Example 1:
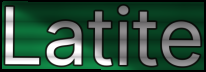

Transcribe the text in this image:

Latite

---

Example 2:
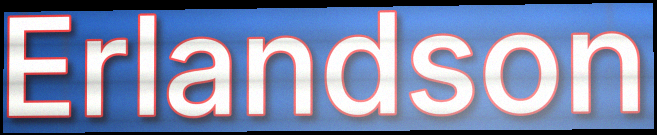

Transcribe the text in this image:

Erlandson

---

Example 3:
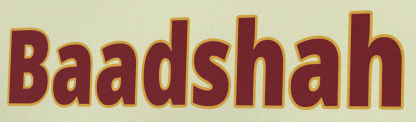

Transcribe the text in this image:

Baadshah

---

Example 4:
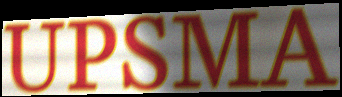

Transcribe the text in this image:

UPSMA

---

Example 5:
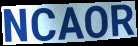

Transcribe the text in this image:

NCAOR